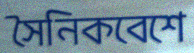
সৈনিকবেশে